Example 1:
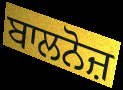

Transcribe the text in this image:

ਬਾਲਨੋਜ਼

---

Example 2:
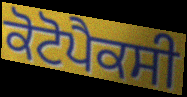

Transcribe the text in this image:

ਕੋਟੋਪੈਕਸੀ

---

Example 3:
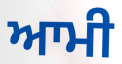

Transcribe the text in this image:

ਆਮੀ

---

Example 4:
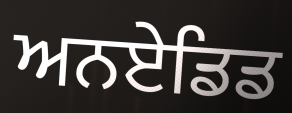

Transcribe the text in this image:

ਅਨਏਡਿਡ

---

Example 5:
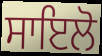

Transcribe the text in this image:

ਸਾਇਲੋ